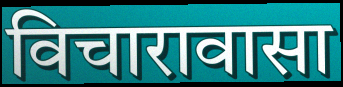
विचारावासा